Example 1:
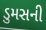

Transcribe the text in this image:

ડુમસની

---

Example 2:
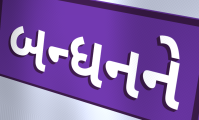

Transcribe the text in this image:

બન્ધનને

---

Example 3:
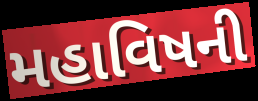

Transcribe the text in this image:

મહાવિષની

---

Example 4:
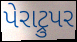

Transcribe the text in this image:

પેરાટ્રુપર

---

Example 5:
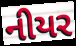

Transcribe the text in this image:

નીયર